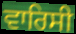
ਵਾਰਿਸੀ